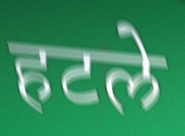
हटले